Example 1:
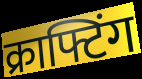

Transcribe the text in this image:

क्राफ्टिंग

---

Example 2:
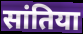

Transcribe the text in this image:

सांतिया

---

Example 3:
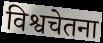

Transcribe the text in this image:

विश्वचेतना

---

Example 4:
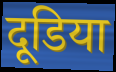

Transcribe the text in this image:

दूडिया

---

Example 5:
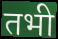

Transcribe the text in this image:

तभी